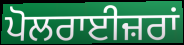
ਪੋਲਰਾਈਜ਼ਰਾਂ